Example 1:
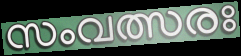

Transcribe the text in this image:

സംവത്സരഃ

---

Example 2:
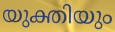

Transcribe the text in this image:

യുക്തിയും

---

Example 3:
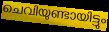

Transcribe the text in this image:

ചെവിയുണ്ടായിട്ടും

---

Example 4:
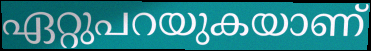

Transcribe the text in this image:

ഏറ്റുപറയുകയാണ്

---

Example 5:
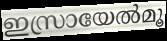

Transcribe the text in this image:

ഇസ്രായേൽമൂ